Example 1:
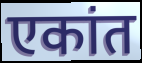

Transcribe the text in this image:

एकांत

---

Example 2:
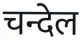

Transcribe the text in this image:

चन्देल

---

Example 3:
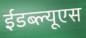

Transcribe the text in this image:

ईडब्ल्यूएस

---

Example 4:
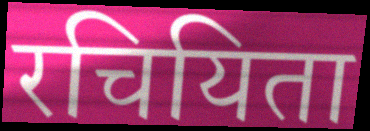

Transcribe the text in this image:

रचियिता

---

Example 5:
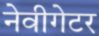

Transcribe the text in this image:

नेवीगेटर